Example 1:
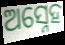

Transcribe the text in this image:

ଅସ୍ନେହ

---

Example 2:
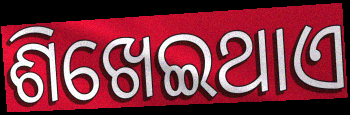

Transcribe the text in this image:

ଶିଖେଇଥାଏ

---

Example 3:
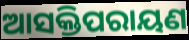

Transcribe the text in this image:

ଆସକ୍ତିପରାୟଣ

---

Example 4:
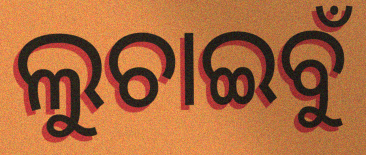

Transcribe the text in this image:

ଲୁଚାଇବୁଁ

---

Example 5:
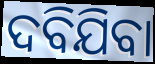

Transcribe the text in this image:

ଦବିଯିବା